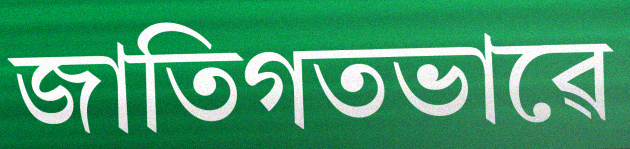
জাতিগতভাৱে